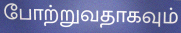
போற்றுவதாகவும்